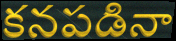
కనపడినా